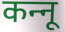
कन्नू